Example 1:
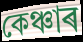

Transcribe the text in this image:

কেঞ্চাৰ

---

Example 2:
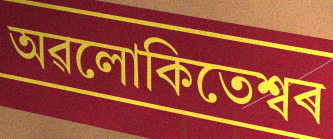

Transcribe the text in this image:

অৱলোকিতেশ্বৰ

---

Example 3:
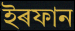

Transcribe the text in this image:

ইৰফান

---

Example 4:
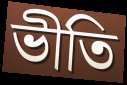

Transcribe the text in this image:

ভীতি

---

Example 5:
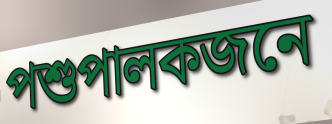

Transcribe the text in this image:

পশুপালকজনে